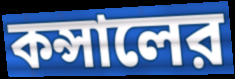
কন্সালের